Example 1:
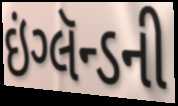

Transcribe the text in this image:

ઇંગ્લૅન્ડની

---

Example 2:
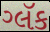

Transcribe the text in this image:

ગ્લૅક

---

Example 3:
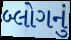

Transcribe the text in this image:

બ્લોગનું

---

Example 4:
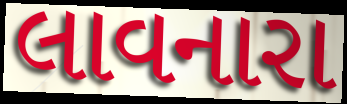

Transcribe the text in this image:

લાવનારા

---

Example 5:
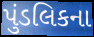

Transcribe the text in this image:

પુંડલિકના